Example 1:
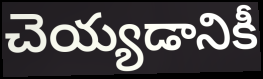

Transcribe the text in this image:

చెయ్యడానికీ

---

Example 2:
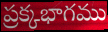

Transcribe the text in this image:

ప్రక్కభాగము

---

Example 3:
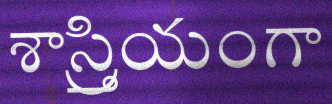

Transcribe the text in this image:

శాస్ర్తియంగా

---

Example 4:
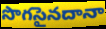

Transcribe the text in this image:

సొగసైనదానా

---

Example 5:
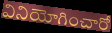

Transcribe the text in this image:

వినియోగించారో